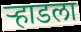
ऱ्हाडला